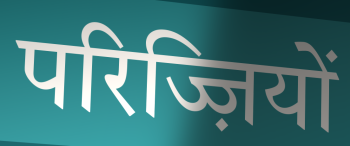
परिज्ज़ियों